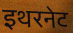
इथरनेट